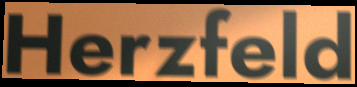
Herzfeld